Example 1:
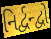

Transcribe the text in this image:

નિર્દ્વન્દ્વો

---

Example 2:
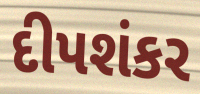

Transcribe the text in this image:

દીપશંકર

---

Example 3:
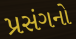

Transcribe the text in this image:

પ્રસંગનો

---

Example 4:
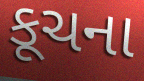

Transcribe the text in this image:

કૂચના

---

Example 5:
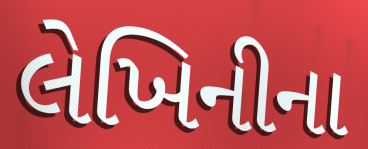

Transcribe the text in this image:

લેખિનીના